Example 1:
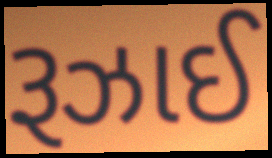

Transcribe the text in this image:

રૂઝાઈ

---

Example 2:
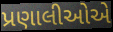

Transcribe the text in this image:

પ્રણાલીઓએ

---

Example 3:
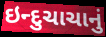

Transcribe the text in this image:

ઇન્દુચાચાનું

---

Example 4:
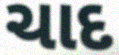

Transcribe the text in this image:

ચાદ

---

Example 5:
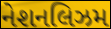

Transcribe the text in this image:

નેશનલિઝમ